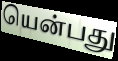
யென்பது